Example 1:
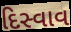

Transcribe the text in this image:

દિસ્વાવ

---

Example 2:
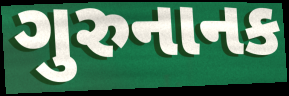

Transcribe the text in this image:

ગુરુનાનક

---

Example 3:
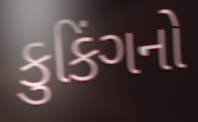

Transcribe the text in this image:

કુકિંગનો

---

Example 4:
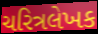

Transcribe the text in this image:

ચરિત્રલેખક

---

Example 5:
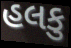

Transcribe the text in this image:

હલકુ